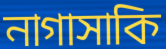
নাগাসাকি